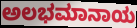
ಅಲಭಮಾನಾಯ